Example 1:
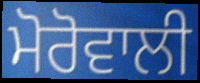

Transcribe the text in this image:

ਮੋਰੋਵਾਲੀ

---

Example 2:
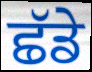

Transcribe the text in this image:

ਛੱਡੇ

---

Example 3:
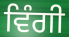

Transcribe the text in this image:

ਵਿੰਗੀ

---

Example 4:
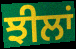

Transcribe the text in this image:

ਝੀਲਾਂ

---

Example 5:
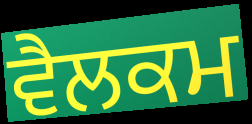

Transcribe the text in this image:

ਵੈਲਕਮ